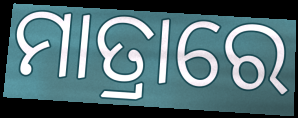
ମାତ୍ରାରେ